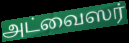
அட்வைஸர்